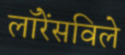
लॉरेंसविले